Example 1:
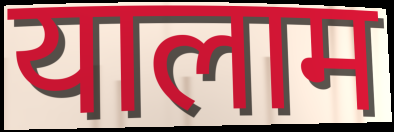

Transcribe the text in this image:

यालाम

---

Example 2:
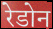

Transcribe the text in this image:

रेडोन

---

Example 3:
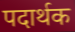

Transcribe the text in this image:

पदार्थक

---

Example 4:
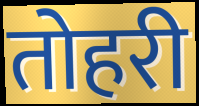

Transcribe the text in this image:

तोहरी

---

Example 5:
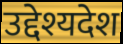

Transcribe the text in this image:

उद्देश्यदेश